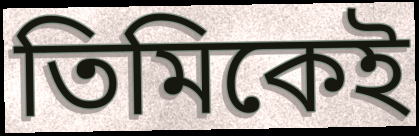
তিমিকেই